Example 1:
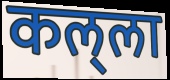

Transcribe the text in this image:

कल्ला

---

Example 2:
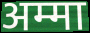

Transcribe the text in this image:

अम्मा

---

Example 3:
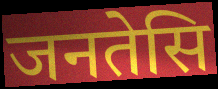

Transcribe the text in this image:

जनतेसि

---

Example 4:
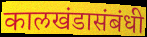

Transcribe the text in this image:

कालखंडासंबंधी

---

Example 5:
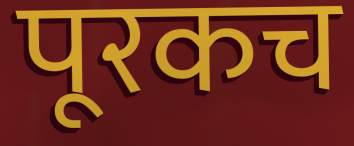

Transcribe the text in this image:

पूरकच